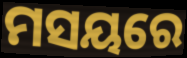
ମସୟରେ